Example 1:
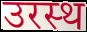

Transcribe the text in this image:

उरस्थ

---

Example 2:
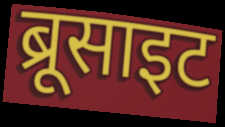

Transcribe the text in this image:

ब्रूसाइट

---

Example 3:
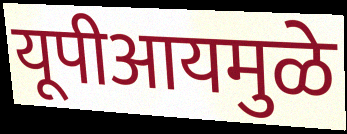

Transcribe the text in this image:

यूपीआयमुळे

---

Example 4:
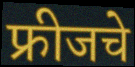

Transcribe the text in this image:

फ्रीजचे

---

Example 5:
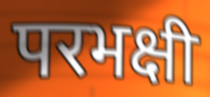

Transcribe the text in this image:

परभक्षी